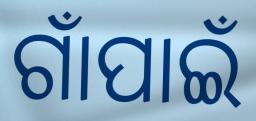
ଗାଁପାଇଁ